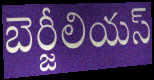
బెర్జీలియస్